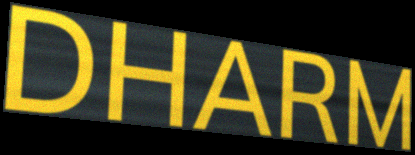
DHARM